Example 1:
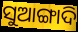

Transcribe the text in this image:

ସୁଆଙ୍ଗାଦି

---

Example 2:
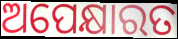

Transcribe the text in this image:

ଅପେକ୍ଷାରତ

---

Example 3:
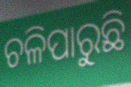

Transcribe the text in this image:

ଚଳିପାରୁଛି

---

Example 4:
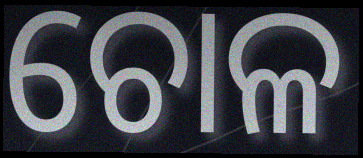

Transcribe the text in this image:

ଚୋଳ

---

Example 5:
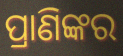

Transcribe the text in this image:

ପ୍ରାଣିଙ୍କର